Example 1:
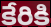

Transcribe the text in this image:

కేరికి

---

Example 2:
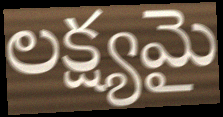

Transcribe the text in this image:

లక్ష్యమై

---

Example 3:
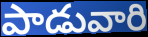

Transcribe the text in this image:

పాడువారి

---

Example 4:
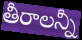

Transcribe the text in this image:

తీరాలన్నీ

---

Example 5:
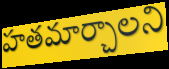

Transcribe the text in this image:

హతమార్చాలని